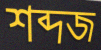
শব্দজ